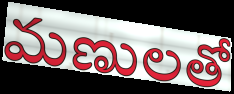
మణులతో